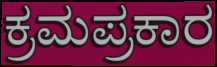
ಕ್ರಮಪ್ರಕಾರ